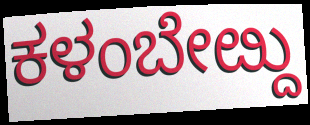
ಕಳಂಬೇೞ್ದು